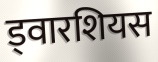
ड्वारशियस